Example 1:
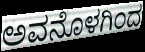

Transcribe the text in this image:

ಅವನೊಳಗಿಂದ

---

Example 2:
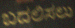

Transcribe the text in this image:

ಬದಲಿಸಲು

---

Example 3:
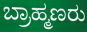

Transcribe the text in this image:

ಬ್ರಾಹ್ಮಣರು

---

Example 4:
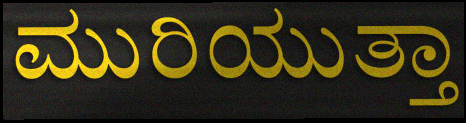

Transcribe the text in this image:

ಮುರಿಯುತ್ತಾ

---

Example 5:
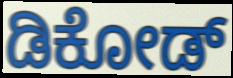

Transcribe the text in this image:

ಡಿಕೋಡ್